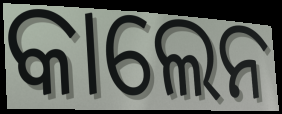
କାଲେନ